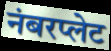
नंबरप्लेट